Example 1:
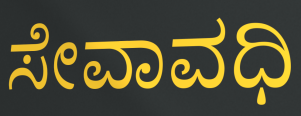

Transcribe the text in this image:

ಸೇವಾವಧಿ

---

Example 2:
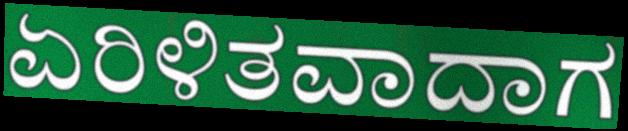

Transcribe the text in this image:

ಏರಿಳಿತವಾದಾಗ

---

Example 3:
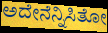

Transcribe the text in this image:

ಅದೇನೆನ್ನಿಸಿತೋ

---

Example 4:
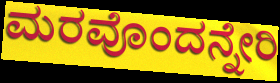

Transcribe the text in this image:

ಮರವೊಂದನ್ನೇರಿ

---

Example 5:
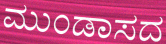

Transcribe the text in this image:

ಮುಂಡಾಸದ